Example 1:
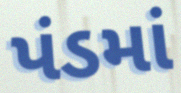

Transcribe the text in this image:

પંડમાં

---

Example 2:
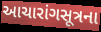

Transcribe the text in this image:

આચારાંગસૂત્રના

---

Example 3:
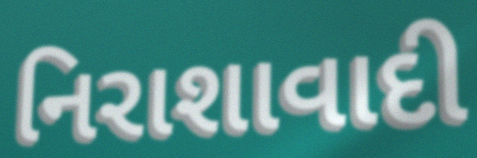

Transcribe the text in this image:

નિરાશાવાદી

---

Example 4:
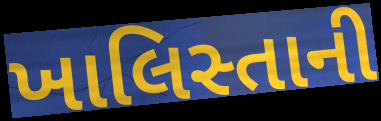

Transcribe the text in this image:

ખાલિસ્તાની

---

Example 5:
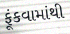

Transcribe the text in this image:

ફૂંકવામાંથી